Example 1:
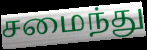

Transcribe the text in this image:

சமைந்து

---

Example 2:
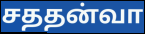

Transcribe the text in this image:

சததன்வா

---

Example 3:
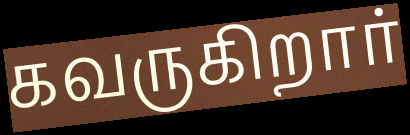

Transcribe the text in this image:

கவருகிறார்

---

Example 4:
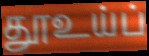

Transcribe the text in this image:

தூஉய்ப்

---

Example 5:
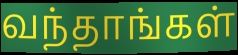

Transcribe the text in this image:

வந்தாங்கள்